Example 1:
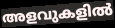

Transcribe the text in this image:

അളവുകളിൽ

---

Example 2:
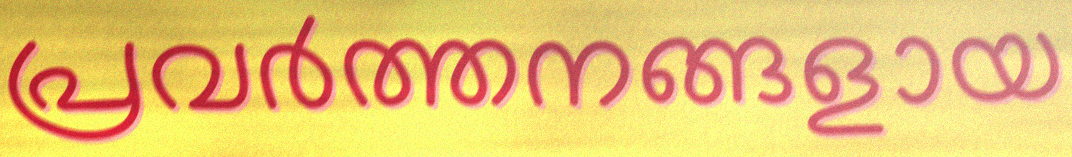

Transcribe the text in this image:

പ്രവർത്തനങ്ങളായ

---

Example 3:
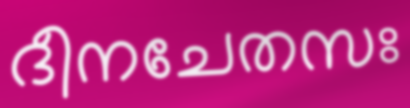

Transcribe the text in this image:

ദീനചേതസഃ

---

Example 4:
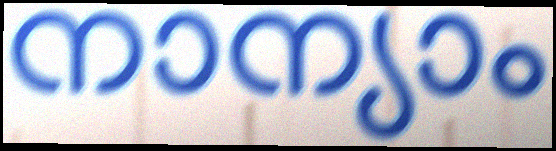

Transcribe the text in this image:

നാന്യാം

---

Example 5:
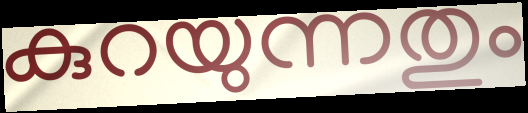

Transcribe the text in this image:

കുറയുന്നതും